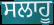
ਸਲਾਹੂ